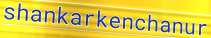
shankarkenchanur